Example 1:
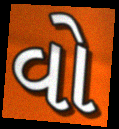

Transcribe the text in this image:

વો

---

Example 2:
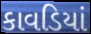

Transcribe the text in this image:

કાવડિયાં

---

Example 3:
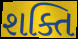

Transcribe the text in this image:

શક્તિ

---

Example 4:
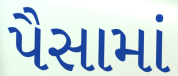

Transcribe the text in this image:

પૈસામાં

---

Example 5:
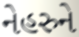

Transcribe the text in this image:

નેહરુને